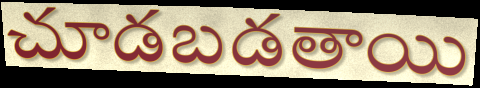
చూడబడతాయి